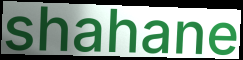
shahane